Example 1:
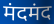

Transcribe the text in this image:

मंदमंद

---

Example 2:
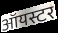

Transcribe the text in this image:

ऑयस्टर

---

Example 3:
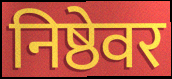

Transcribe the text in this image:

निष्ठेवर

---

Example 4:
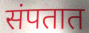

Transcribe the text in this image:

संपतात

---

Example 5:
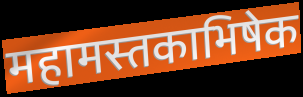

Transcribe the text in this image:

महामस्तकाभिषेक